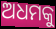
ଅଧମକୁ